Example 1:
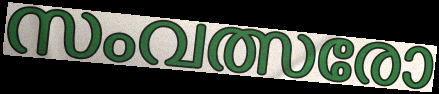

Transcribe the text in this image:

സംവത്സരോ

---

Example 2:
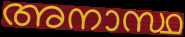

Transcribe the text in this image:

അനാസ്ഥ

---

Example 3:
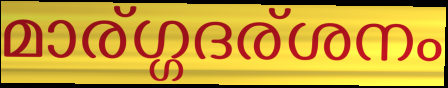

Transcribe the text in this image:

മാര്ഗ്ഗദര്ശനം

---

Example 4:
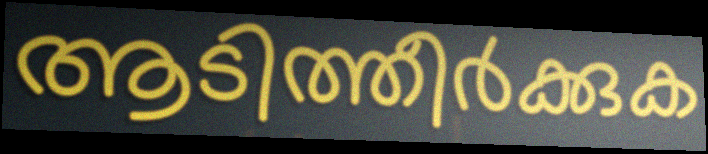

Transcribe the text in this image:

ആടിത്തീർക്കുക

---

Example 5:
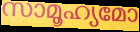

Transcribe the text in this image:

സാമൂഹ്യമോ